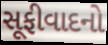
સૂફીવાદનો